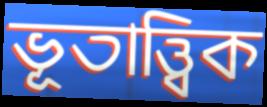
ভূতাত্ত্বিক